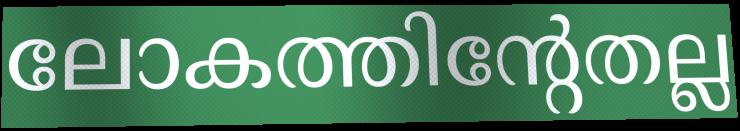
ലോകത്തിന്റേതല്ല